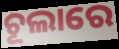
ଚୂଲାରେ